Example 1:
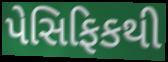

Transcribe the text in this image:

પેસિફિકથી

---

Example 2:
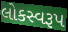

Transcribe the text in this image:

લોકસ્વરૂપ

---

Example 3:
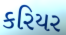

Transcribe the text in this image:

કરિયર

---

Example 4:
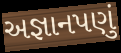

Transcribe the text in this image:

અજ્ઞાનપણું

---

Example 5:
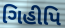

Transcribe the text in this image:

ગિહીપિ